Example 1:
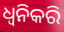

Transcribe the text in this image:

ଧ୍ୱନିକରି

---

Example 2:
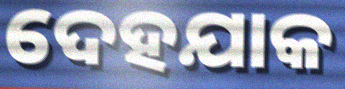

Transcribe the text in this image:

ଦେହଯାକ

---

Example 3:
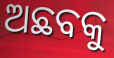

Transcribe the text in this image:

ଅଛବକୁ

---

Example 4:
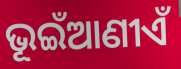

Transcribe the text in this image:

ଭୂଇଁଆଣୀଏଁ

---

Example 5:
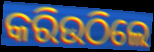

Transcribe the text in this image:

କରିଉଠିଲେ